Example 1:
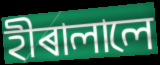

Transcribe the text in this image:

হীৰালালে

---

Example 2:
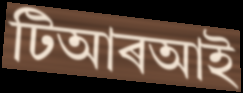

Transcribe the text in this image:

টিআৰআই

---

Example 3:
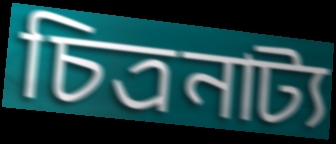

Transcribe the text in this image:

চিত্ৰনাট্য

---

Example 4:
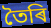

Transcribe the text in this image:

তৈৰি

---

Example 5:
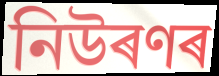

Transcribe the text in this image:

নিউৰণৰ